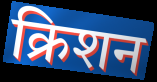
क्रिशन